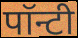
पॉन्टी